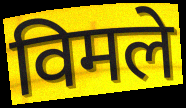
विमले